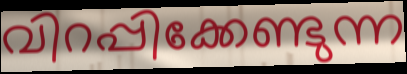
വിറപ്പിക്കേണ്ടുന്ന